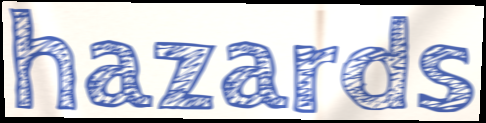
hazards